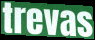
trevas